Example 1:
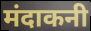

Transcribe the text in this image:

मंदाकनी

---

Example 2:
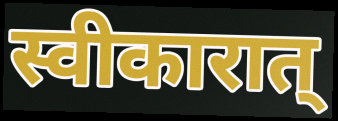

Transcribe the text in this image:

स्वीकारात्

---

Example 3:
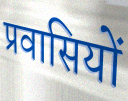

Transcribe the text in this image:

प्रवासियों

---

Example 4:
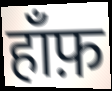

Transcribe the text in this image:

हाँफ़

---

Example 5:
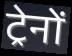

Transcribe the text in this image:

ट्रेनों